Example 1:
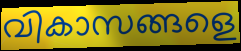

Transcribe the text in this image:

വികാസങ്ങളെ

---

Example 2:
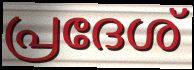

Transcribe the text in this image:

പ്രദേശ്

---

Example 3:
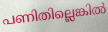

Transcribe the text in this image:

പണിതില്ലെങ്കിൽ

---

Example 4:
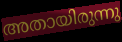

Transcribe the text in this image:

അതായിരുന്നു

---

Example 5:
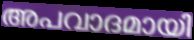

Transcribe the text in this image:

അപവാദമായി